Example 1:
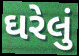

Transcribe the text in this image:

ઘરેલું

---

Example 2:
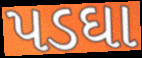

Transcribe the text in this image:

પડઘા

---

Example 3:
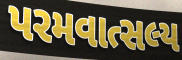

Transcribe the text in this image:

પરમવાત્સલ્ય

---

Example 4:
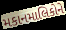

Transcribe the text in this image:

મકાનમાલિકોને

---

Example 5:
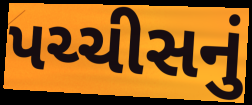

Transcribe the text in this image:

પચ્ચીસનું